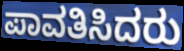
ಪಾವತಿಸಿದರು